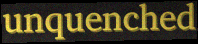
unquenched